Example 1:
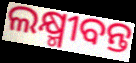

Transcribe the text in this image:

ଲକ୍ଷ୍ମୀବନ୍ତ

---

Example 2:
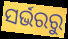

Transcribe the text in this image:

ସର୍ଭରରୁ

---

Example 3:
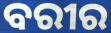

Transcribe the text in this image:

ବରୀର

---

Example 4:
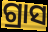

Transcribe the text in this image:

ଗ୍ରାସ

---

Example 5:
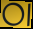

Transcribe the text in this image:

ଠା